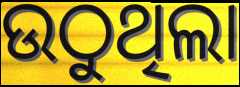
ଉଠୁଥିଲା